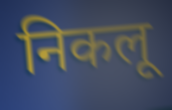
निकलू